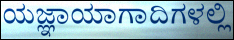
ಯಜ್ಞಾಯಾಗಾದಿಗಳಲ್ಲಿ